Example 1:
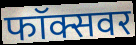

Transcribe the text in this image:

फॉक्सवर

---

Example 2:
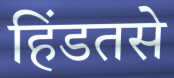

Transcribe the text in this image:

हिंडतसे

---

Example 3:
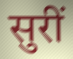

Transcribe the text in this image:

सुरीं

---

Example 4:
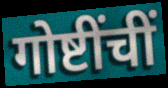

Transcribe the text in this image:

गोष्टींचीं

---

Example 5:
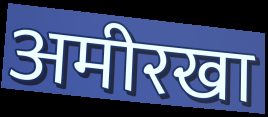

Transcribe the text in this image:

अमीरखा